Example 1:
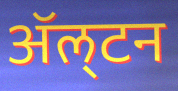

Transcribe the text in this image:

ॲल्टन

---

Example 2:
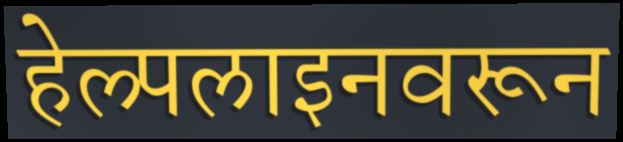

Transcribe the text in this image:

हेल्पलाइनवरून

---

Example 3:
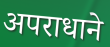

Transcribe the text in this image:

अपराधाने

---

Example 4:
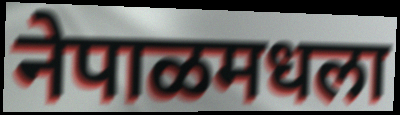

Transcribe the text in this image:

नेपाळमधला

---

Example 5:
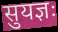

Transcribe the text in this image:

सुयज्ञः